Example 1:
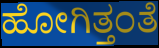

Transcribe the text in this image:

ಹೋಗಿತ್ತಂತೆ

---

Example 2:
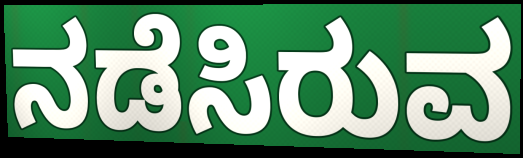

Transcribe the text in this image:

ನಡೆಸಿರುವ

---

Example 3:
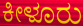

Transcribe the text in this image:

ಕೀಳೂರು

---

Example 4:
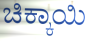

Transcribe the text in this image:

ಚಿಕ್ಕಾಯಿ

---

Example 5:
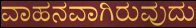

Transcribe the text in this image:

ವಾಹನವಾಗಿರುವುದು